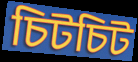
চিটচিট